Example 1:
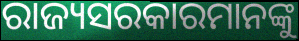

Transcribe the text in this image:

ରାଜ୍ୟସରକାରମାନଙ୍କୁ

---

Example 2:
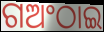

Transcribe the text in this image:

ଗଅଂଠାଇ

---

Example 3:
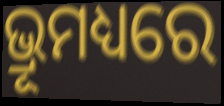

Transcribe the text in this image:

ଭ୍ରୂମଧ୍ୟରେ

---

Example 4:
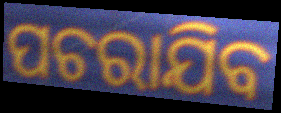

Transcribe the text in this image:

ପଚରାଯିବ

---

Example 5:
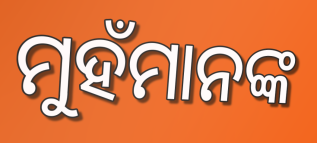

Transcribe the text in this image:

ମୁହଁମାନଙ୍କ